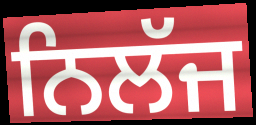
ਨਿਲੱਜ